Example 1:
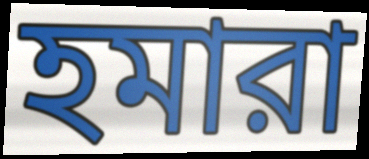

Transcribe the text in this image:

হমারা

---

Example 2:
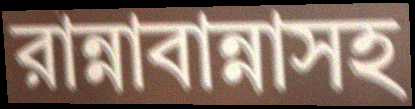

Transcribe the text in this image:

রান্নাবান্নাসহ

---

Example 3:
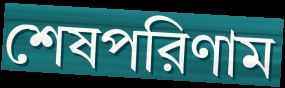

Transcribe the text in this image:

শেষপরিণাম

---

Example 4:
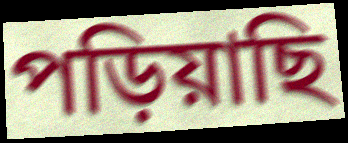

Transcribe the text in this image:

পড়িয়াছি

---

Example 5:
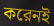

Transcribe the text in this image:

করেনই